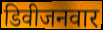
डिवीजनवार